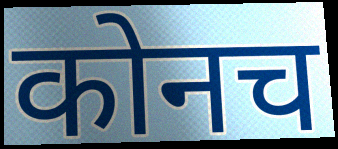
कोनच